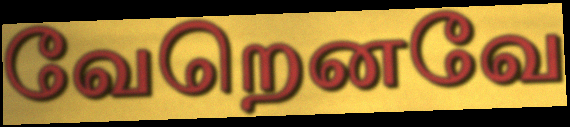
வேறெனவே